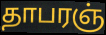
தாபரஞ்